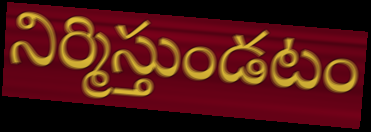
నిర్మిస్తుండటం